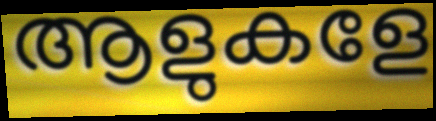
ആളുകളേ